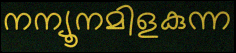
നന്യൂനമിളകുന്ന